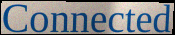
Connected